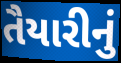
તૈયારીનું